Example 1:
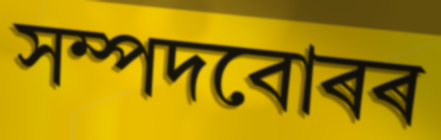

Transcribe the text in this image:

সম্পদবোৰৰ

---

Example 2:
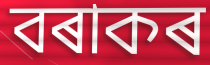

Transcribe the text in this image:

বৰাকৰ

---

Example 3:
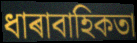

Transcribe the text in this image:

ধাৰাবাহিকতা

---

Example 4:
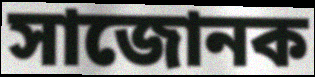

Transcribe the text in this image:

সাজোনক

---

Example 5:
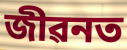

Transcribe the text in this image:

জীৱনত